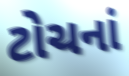
ટોચનાં